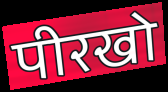
पीरखो